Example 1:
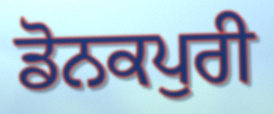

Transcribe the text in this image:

ਡੋਨਕਪੁਰੀ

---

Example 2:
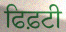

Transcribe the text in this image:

ਫਿਫ਼ਟੀ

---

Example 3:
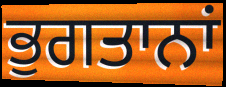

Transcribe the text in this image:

ਭੁਗਤਾਨਾਂ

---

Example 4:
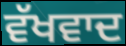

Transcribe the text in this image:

ਵੱਖਵਾਦ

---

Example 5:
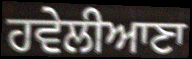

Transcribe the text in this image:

ਹਵੇਲੀਆਣਾ